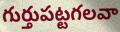
గుర్తుపట్టగలవా